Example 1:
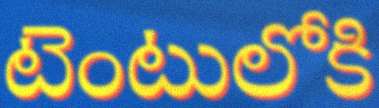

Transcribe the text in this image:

టెంటులోకి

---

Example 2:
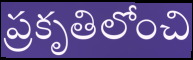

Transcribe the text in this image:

ప్రకృతిలోంచి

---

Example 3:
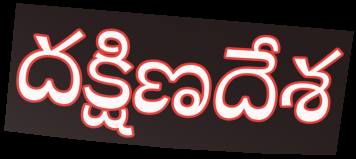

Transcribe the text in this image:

దక్షిణదేశ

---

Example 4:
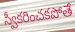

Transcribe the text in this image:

స్వీకరించకపోతే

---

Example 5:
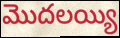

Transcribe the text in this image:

మొదలయ్యి